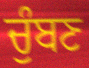
ਚੁੰਬਣ